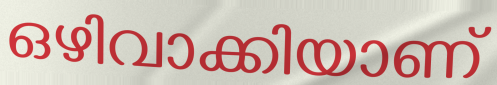
ഒഴിവാക്കിയാണ്